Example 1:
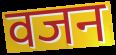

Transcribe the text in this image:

वजन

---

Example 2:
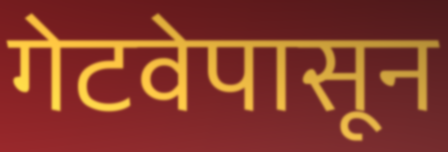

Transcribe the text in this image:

गेटवेपासून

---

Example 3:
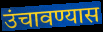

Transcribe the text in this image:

उंचावण्यास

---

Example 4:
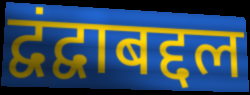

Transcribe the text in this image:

द्वंद्वाबद्दल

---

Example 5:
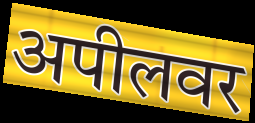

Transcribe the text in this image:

अपीलवर